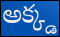
అక్క్డ